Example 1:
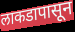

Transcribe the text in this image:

लाकडापासून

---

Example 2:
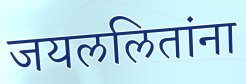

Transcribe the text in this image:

जयललितांना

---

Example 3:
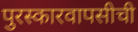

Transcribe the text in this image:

पुरस्कारवापसीची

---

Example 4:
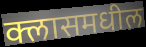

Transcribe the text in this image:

क्लासमधील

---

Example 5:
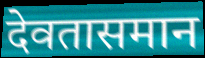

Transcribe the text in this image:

देवतासमान